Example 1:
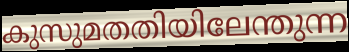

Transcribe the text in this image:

കുസുമതതിയിലേന്തുന്ന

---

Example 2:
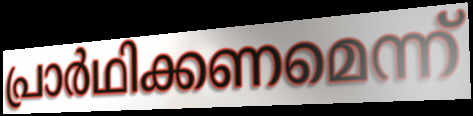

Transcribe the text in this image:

പ്രാർഥിക്കണമെന്ന്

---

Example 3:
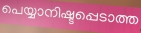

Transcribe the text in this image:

പെയ്യാനിഷ്ടപ്പെടാത്ത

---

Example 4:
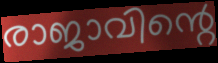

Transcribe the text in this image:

രാജാവിന്റെ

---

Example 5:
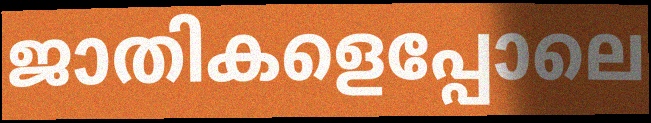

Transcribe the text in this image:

ജാതികളെപ്പോലെ